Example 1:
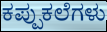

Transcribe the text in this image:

ಕಪ್ಪುಕಲೆಗಳು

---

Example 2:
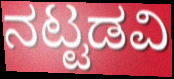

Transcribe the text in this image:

ನಟ್ಟಡವಿ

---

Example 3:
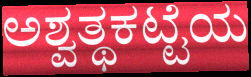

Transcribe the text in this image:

ಅಶ್ವತ್ಥಕಟ್ಟೆಯ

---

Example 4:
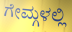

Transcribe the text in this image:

ಗೇಮ್ಗಳಲ್ಲಿ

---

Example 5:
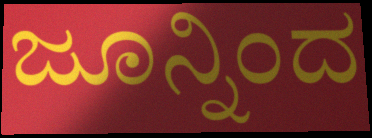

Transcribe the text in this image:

ಜೂನ್ನಿಂದ